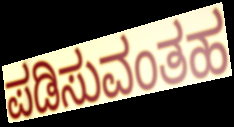
ಪಡಿಸುವಂತಹ